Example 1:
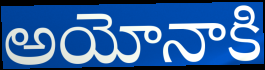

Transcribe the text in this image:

అయోనాకి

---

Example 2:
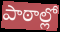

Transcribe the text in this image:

పాఠాల్లో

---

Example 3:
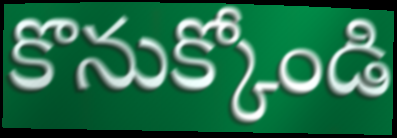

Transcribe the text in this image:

కొనుక్కోండి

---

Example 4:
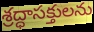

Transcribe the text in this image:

శ్రద్ధాసక్తులను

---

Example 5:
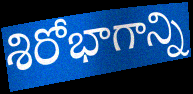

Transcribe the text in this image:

శిరోభాగాన్ని